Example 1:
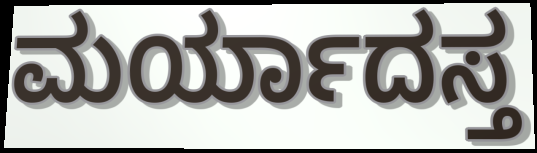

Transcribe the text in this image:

ಮರ್ಯಾದಸ್ತ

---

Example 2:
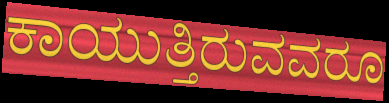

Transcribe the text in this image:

ಕಾಯುತ್ತಿರುವವರೂ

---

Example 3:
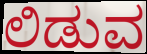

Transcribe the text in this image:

ಲಿಡುವ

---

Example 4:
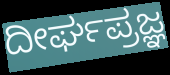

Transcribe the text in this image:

ದೀರ್ಘಪ್ರಜ್ಞ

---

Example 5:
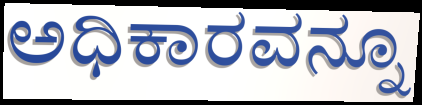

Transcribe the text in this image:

ಅಧಿಕಾರವನ್ನೂ